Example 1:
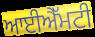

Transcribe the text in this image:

ਆਈਐੱਮਟੀ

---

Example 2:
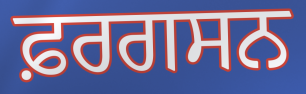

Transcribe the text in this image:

ਫ਼ਰਗਸਨ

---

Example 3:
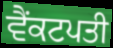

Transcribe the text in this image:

ਵੈਂਕਟਪਤੀ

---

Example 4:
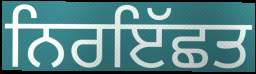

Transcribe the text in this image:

ਨਿਰਇੱਛਤ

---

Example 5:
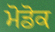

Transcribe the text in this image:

ਮੋਡੋਕ